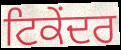
ਟਿਕੇਂਦਰ